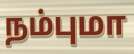
நம்புமா